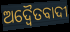
ଅଦ୍ୱୈତବାଦୀ